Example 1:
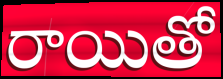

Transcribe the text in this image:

రాయితో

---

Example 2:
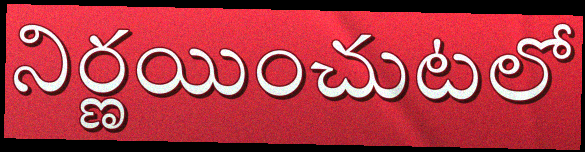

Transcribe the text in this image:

నిర్ణయించుటలో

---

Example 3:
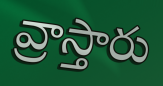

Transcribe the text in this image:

వ్రాస్తారు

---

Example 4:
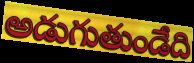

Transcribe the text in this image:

అడుగుతుండేది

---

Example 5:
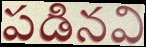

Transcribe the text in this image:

పడినవి